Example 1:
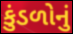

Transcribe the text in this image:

કુંડળોનું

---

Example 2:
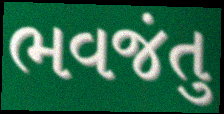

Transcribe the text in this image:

ભવજંતુ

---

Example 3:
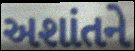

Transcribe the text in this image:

અશાંતને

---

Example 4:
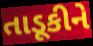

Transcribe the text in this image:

તાડૂકીને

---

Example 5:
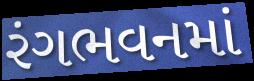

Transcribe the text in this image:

રંગભવનમાં